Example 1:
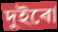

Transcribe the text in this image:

দুইৰো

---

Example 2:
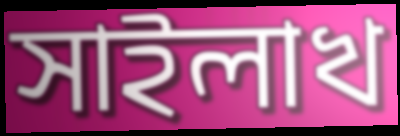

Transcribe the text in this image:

সাইলাখ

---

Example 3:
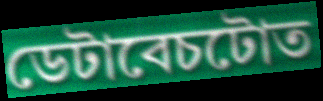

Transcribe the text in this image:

ডেটাবেচটোত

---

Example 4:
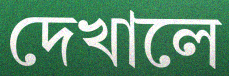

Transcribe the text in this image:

দেখালে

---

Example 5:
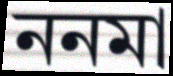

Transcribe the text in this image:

ননমা